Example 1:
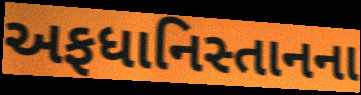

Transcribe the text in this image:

અફધાનિસ્તાનના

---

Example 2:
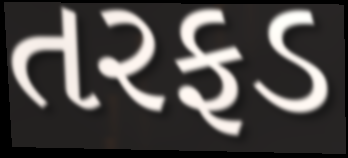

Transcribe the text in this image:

તરફડ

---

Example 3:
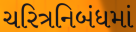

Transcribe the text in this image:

ચરિત્રનિબંધમાં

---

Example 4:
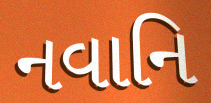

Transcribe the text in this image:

નવાનિ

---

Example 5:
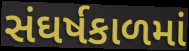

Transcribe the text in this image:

સંઘર્ષકાળમાં